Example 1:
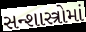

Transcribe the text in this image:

સન્શાસ્ત્રોમાં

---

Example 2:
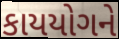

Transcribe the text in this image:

કાયયોગને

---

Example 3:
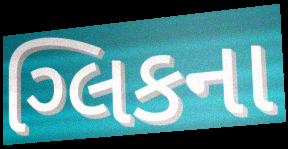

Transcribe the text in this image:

ગ્લિકના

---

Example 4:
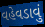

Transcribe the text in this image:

વહેવડાવું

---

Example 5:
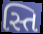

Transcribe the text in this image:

સ્તિ